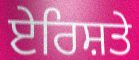
ਏਰਿਸ਼ਤੇ